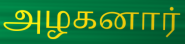
அழகனார்